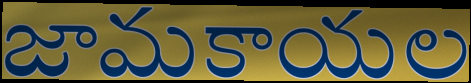
జామకాయల